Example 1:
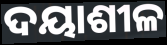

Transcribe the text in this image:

ଦୟାଶୀଳ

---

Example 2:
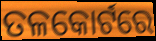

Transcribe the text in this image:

ତଳକୋର୍ଟରେ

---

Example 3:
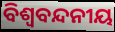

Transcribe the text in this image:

ବିଶ୍ୱବନ୍ଦନୀୟ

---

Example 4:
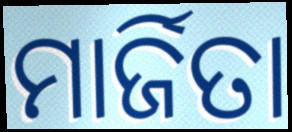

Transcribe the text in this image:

ମାର୍ଜିତା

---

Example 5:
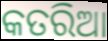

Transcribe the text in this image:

କତରିଆ